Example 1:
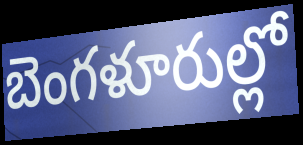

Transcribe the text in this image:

బెంగళూరుల్లో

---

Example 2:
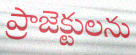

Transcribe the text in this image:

ప్రాజెక్టులను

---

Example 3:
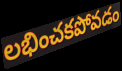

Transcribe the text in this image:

లభించకపోవడం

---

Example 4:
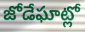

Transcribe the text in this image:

జోడేఘాట్లో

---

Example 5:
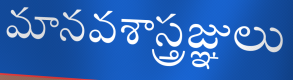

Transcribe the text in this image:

మానవశాస్త్రజ్ఞులు